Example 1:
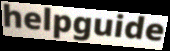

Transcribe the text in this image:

helpguide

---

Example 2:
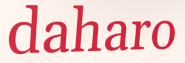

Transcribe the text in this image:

daharo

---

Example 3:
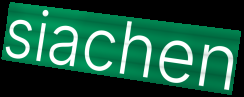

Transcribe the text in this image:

siachen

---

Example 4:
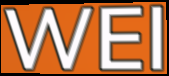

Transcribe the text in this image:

WEI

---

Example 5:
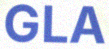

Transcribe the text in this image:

GLA